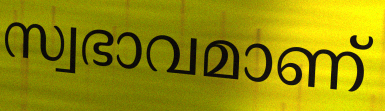
സ്വഭാവമാണ്